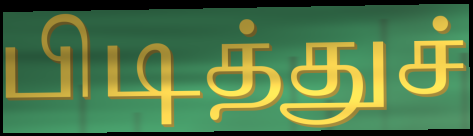
பிடித்துச்